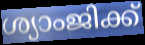
ശ്യാംജിക്ക്